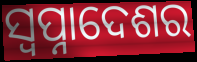
ସ୍ଵପ୍ନାଦେଶର